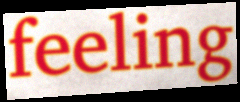
feeling